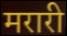
मरारी